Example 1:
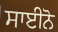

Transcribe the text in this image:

ਸਾਈਨੋ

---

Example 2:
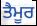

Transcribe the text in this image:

ਤੈਮੂਰ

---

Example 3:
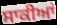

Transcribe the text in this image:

ਸਾਕੀਆਂ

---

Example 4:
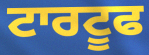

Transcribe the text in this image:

ਟਾਰਟੂਫ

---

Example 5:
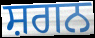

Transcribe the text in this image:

ਸ਼ਗਨ